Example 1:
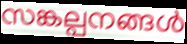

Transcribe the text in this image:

സങ്കല്പനങ്ങൾ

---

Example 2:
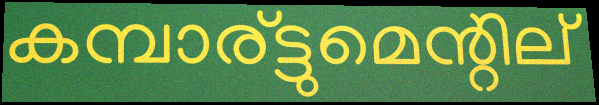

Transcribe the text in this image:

കമ്പാര്ട്ടുമെന്റില്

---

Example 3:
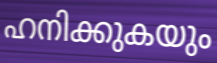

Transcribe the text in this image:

ഹനിക്കുകയും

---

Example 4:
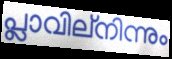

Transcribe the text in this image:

പ്ലാവില്നിന്നും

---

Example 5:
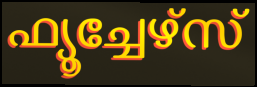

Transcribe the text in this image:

ഫ്യൂച്ചേഴ്സ്